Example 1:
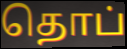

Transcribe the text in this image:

தொப்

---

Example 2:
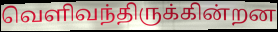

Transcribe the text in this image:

வெளிவந்திருக்கின்றன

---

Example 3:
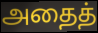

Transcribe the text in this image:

அதைத்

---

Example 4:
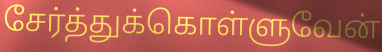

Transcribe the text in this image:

சேர்த்துக்கொள்ளுவேன்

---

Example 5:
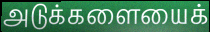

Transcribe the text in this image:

அடுக்களையைக்